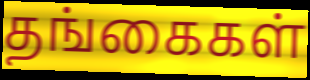
தங்கைகள்